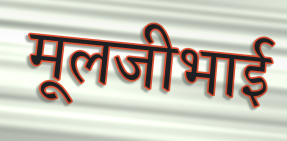
मूलजीभाई